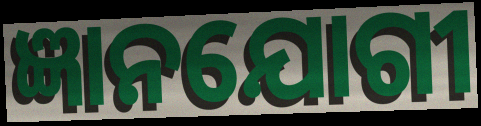
ଜ୍ଞାନଯୋଗୀ